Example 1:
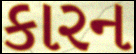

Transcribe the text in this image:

કારન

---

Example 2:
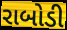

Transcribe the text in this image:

રાબોડી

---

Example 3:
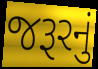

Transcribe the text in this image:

જરૂરનું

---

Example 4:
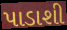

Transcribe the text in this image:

પાડાશી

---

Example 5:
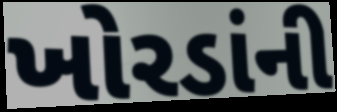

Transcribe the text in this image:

ખોરડાંની